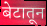
बेटातून